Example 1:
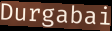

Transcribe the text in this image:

Durgabai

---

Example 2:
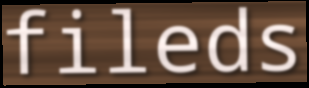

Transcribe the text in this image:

fileds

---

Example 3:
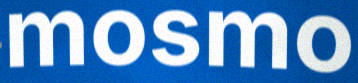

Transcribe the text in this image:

mosmo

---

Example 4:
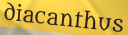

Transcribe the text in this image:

diacanthus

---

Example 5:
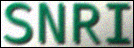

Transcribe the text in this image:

SNRI